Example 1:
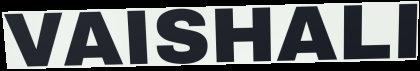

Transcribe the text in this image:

VAISHALI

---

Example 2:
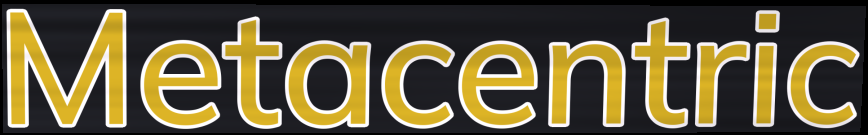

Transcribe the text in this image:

Metacentric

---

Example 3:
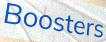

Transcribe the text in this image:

Boosters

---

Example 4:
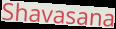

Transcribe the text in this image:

Shavasana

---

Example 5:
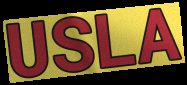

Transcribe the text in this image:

USLA